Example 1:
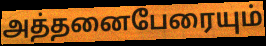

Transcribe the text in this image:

அத்தனைபேரையும்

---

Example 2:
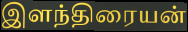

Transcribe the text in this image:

இளந்திரையன்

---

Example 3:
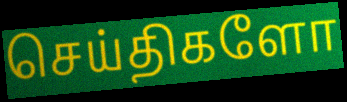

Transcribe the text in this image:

செய்திகளோ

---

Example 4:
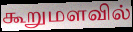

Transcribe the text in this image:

கூறுமளவில்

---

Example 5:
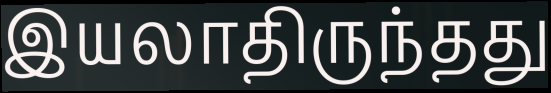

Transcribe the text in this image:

இயலாதிருந்தது